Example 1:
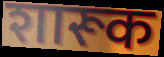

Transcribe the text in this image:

शारूक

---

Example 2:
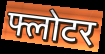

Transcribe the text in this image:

फ्लोटर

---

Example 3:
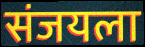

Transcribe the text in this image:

संजयला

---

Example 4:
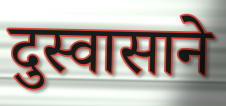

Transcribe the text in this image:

दुस्वासाने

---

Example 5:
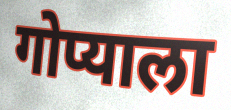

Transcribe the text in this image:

गोप्याला